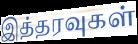
இத்தரவுகள்